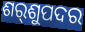
ଶର୍‌ଶୁପଦର